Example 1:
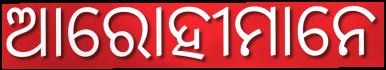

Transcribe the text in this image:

ଆରୋହୀମାନେ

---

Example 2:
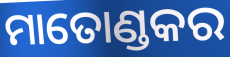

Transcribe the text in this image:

ମାତୋଣ୍ଡକର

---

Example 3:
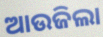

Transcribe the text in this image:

ଆଉଜିଲା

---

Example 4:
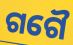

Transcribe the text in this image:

ଗଗୈ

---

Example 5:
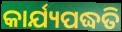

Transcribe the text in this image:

କାର୍ଯ୍ୟପଦ୍ଧତି